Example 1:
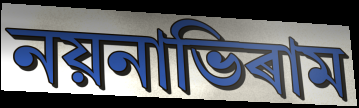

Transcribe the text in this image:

নয়নাভিৰাম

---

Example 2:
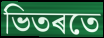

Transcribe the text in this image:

ভিতৰতে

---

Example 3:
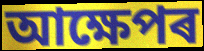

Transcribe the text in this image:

আক্ষেপৰ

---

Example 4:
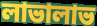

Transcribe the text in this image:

লাভালাভ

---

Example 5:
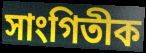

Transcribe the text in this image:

সাংগিতীক